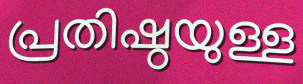
പ്രതിഷ്ഠയുള്ള